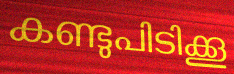
കണ്ടുപിടിക്കൂ